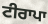
ਟੀਰਾਪਾ